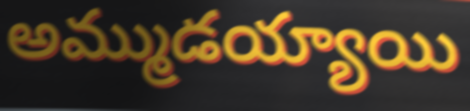
అమ్ముడయ్యాయి